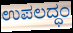
ಉಪಲದ್ಧಂ